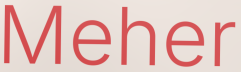
Meher